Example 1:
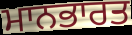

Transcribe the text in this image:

ਮਾਨਭਾਰਤ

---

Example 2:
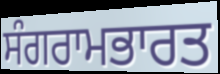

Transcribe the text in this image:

ਸੰਗਰਾਮਭਾਰਤ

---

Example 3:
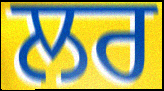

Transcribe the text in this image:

ਲਰ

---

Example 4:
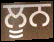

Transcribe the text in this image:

ਲੂਨ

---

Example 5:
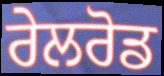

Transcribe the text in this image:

ਰੇਲਰੋਡ